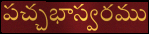
పచ్చభాస్వరము